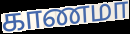
காணமா